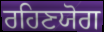
ਰਹਿਣਯੋਗ